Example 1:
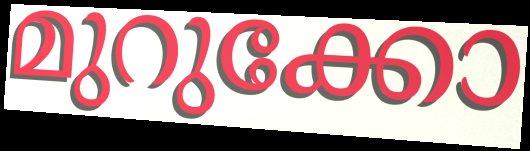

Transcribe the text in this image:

മുറുക്കോ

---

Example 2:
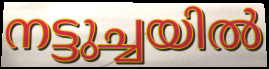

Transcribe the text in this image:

നട്ടുച്ചയിൽ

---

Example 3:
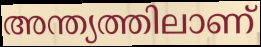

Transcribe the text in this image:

അന്ത്യത്തിലാണ്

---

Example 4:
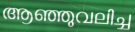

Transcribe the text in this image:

ആഞ്ഞുവലിച്ച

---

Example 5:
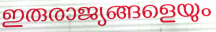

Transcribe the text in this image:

ഇരുരാജ്യങ്ങളെയും